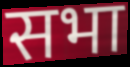
सभा